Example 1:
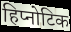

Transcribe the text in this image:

हिप्नोटिक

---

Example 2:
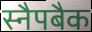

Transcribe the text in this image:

स्नैपबैक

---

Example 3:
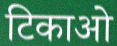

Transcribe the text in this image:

टिकाओ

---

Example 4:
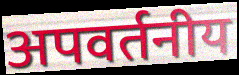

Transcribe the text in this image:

अपवर्तनीय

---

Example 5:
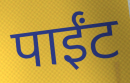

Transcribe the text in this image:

पाईंट